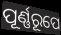
ପୂର୍ଣ୍ଣରୂପେ